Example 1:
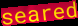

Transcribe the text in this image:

seared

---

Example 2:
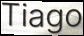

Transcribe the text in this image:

Tiago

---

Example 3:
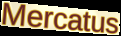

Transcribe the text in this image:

Mercatus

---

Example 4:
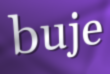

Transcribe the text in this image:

buje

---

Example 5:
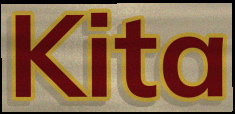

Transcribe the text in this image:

Kita